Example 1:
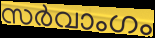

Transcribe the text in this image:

സർവാംഗം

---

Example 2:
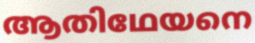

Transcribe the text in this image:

ആതിഥേയനെ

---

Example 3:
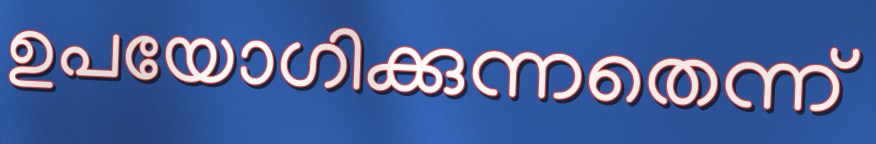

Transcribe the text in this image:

ഉപയോഗിക്കുന്നതെന്ന്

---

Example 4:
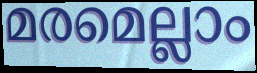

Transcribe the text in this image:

മരമെല്ലാം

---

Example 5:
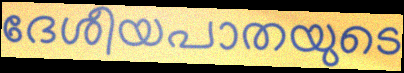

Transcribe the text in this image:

ദേശീയപാതയുടെ